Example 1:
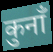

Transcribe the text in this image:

कुनाँ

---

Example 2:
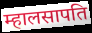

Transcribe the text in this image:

म्हालसापति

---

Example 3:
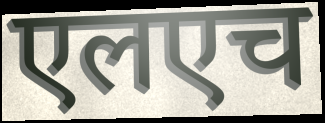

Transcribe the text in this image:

एलएच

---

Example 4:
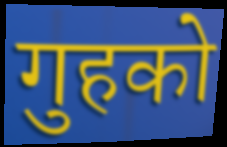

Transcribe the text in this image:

गुहको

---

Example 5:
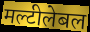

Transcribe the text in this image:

मल्टीलेबल